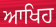
ਆਖਿਹ